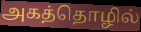
அகத்தொழில்